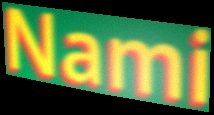
Nami